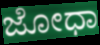
ಜೋಧಾ